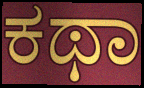
ಕಥಾ